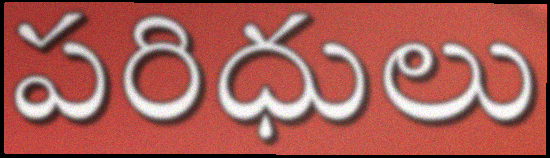
పరిధులు